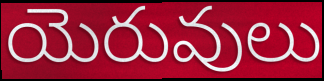
యెరువులు